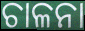
ଚାଳନା